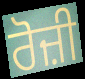
ਰੋਜ਼ੀ